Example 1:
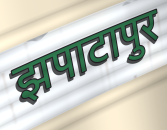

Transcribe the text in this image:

झपाटापुर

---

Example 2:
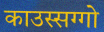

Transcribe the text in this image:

काउस्सग्गो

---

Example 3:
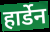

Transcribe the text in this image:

हार्डेन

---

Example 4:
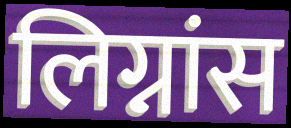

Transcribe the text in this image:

लिग्नांस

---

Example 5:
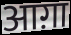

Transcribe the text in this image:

आग़ा